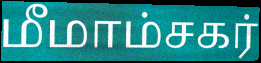
மீமாம்சகர்